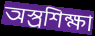
অস্ত্রশিক্ষা